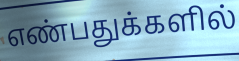
எண்பதுக்களில்